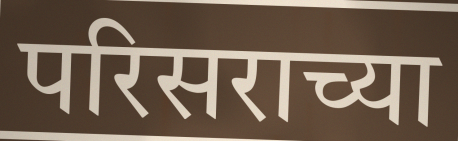
परिसराच्या